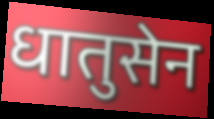
धातुसेन